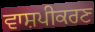
ਵਾਸ਼ਪੀਕਰਣ